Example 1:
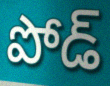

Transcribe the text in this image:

పోడ్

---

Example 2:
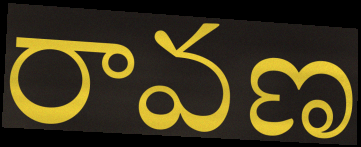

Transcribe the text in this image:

రావణ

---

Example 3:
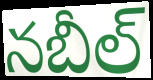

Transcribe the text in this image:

నబీల్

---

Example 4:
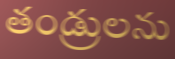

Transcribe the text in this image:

తండ్రులను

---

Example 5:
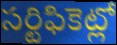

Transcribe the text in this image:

సర్టిఫికెట్లో